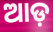
ଆଡ଼